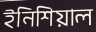
ইনিশিয়াল